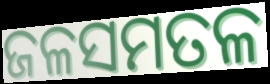
ଜଳସମତଳ